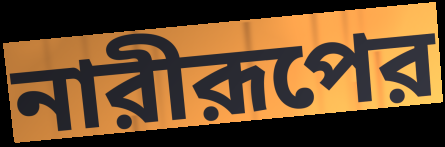
নারীরূপের